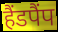
हैंडपैंप